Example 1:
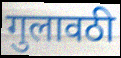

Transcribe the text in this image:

गुलावठी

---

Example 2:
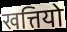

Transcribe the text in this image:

खत्तियो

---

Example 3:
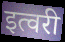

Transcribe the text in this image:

इत्वरी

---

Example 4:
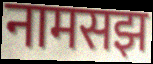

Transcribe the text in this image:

नामसझ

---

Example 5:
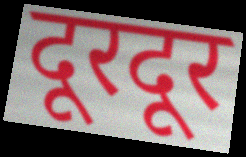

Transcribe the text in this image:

दूरदूर